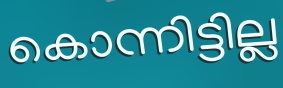
കൊന്നിട്ടില്ല